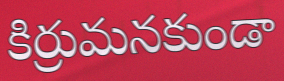
కిర్రుమనకుండా